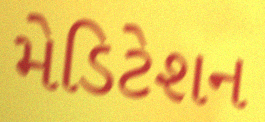
મેડિટેશન